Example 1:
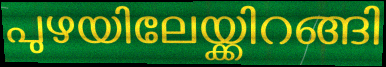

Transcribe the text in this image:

പുഴയിലേയ്ക്കിറങ്ങി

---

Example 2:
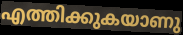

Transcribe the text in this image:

എത്തിക്കുകയാണു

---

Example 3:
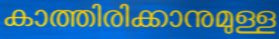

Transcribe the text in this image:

കാത്തിരിക്കാനുമുള്ള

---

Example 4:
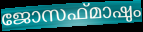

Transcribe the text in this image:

ജോസഫ്മാഷും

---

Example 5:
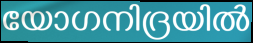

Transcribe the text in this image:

യോഗനിദ്രയിൽ